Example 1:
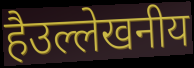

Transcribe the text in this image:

हैउल्लेखनीय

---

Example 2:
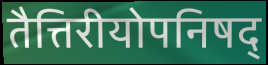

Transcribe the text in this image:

तैत्तिरीयोपनिषद्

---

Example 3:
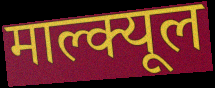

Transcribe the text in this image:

माल्क्यूल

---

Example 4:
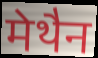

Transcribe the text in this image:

मेथैन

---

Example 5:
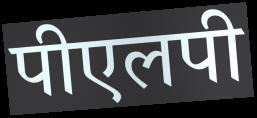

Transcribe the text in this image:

पीएलपी